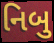
નિબુ